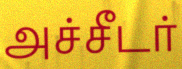
அச்சீடர்